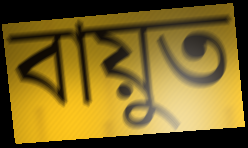
বায়ুত